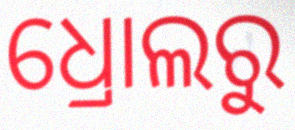
ଧ୍ରୋଲରୁ